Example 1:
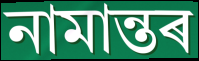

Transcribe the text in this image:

নামান্তৰ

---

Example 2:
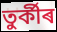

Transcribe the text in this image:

তুৰ্কীৰ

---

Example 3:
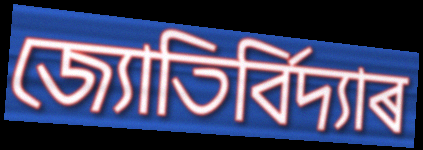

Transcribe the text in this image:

জ্যোতিৰ্বিদ্যাৰ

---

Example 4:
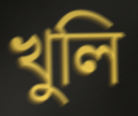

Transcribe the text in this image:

খুলি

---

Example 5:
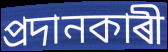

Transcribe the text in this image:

প্ৰদানকাৰী